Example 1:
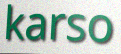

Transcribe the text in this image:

karso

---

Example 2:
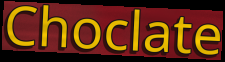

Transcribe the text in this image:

Choclate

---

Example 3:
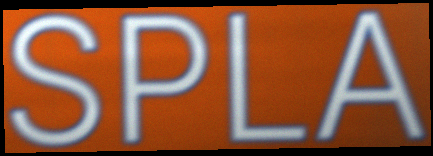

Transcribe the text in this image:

SPLA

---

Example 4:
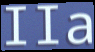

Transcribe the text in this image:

IIa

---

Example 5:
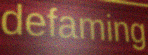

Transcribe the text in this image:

defaming